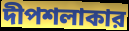
দীপশলাকার